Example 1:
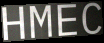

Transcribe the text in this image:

HMEC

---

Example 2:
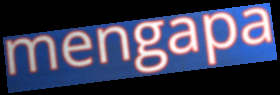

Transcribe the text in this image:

mengapa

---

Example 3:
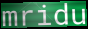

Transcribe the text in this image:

mridu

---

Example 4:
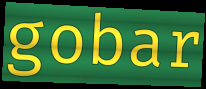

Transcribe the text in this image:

gobar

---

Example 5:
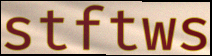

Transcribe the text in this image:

stftws